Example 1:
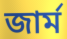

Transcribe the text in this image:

জার্ম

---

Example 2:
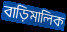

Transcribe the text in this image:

বাড়িমালিক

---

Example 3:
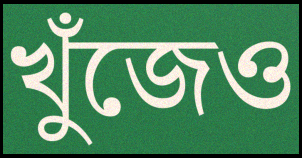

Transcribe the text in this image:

খুঁজেও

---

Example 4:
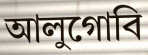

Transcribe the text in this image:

আলুগোবি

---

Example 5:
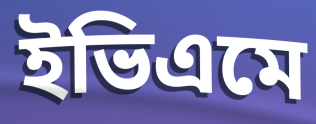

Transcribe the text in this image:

ইভিএমে